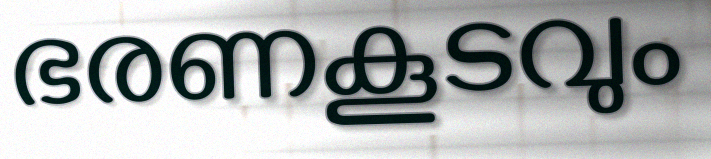
ഭരണകൂടവും